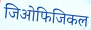
जिओफिजिकल